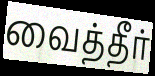
வைத்தீர்